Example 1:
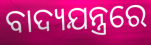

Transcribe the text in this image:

ବାଦ୍ୟଯନ୍ତ୍ରରେ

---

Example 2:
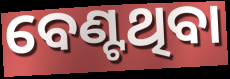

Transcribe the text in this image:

ବେଣ୍ଟଥିବା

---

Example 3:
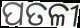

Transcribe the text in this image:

ପତଳୀ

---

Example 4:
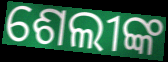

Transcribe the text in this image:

ଶେଲୀଙ୍କ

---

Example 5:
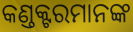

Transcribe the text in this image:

କଣ୍ଡକ୍ଟରମାନଙ୍କ